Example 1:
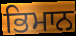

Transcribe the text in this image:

ਭਿਮਾਨ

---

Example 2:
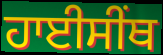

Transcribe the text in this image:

ਹਾਈਸੀੰਥ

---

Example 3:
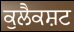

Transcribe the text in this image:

ਕੁਲੈਕਸ਼ਟ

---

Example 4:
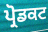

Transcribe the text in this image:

ਪ੍ਰੋਡਕਟ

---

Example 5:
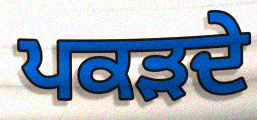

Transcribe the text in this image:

ਪਕੜਦੇ